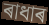
ৰাধাৰ